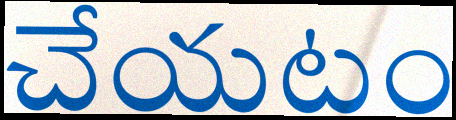
చేయటం